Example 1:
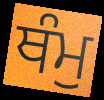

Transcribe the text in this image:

ਥੰਮੁ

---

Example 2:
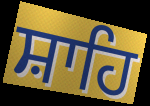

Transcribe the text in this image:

ਸ਼ਾਹਿ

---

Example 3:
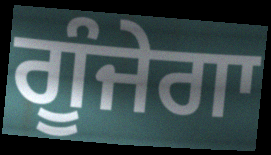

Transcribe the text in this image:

ਗੂੰਜੇਗਾ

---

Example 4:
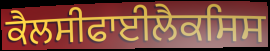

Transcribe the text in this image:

ਕੈਲਸੀਫਾਈਲੈਕਸਿਸ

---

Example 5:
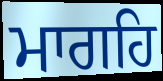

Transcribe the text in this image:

ਮਾਗਹਿ